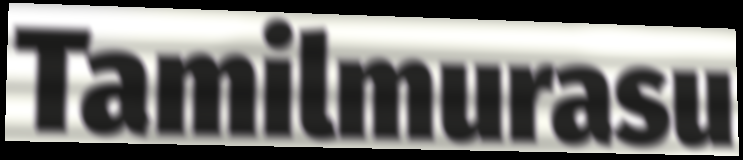
Tamilmurasu